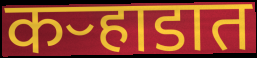
कऱ्हाडात